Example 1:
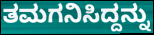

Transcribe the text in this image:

ತಮಗನಿಸಿದ್ದನ್ನು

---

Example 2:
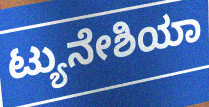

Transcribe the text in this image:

ಟ್ಯುನೇಶಿಯಾ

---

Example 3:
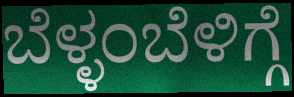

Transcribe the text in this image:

ಬೆಳ್ಳಂಬೆಳಿಗ್ಗೆ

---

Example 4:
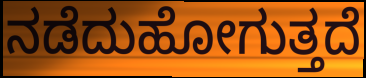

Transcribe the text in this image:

ನಡೆದುಹೋಗುತ್ತದೆ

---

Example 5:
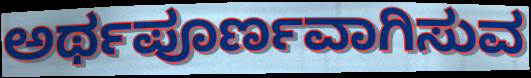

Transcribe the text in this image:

ಅರ್ಥಪೂರ್ಣವಾಗಿಸುವ